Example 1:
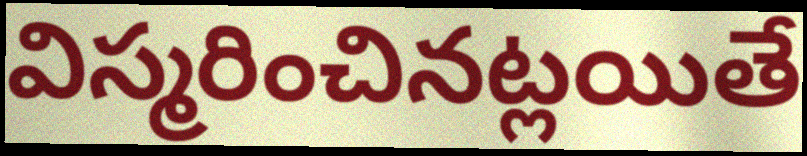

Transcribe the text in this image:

విస్మరించినట్లయితే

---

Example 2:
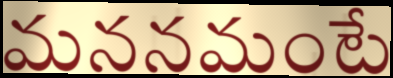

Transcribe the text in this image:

మననమంటే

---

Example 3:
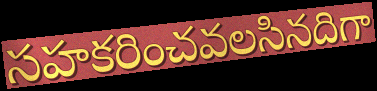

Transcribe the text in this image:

సహకరించవలసినదిగా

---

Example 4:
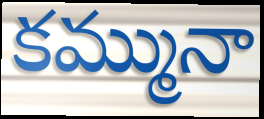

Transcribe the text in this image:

కమ్మునా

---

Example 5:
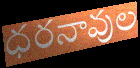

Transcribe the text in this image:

ధరనావుల